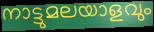
നാട്ടുമലയാളവും